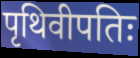
पृथिवीपतिः